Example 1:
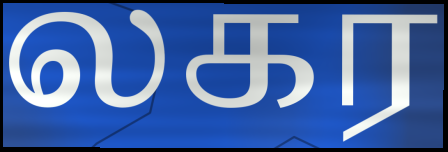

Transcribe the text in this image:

லகர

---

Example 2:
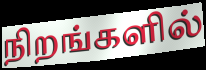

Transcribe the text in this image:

நிறங்களில்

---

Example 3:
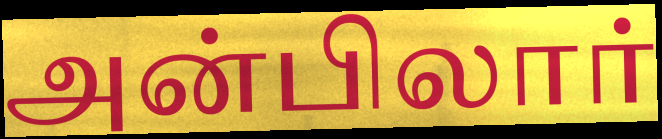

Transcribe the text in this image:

அன்பிலார்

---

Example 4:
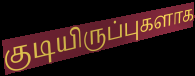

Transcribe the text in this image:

குடியிருப்புகளாக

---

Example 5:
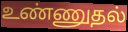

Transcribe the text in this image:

உண்ணுதல்